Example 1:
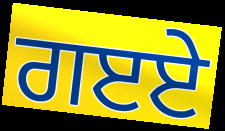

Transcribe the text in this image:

ਗੲਏ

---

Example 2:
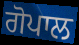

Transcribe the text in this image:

ਗੋਪਾਲ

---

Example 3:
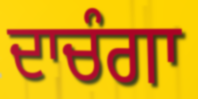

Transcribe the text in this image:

ਦਾਚੰਗਾ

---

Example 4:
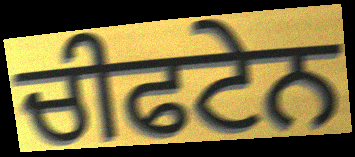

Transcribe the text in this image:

ਚੀਫਟੇਨ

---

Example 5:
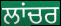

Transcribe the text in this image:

ਲਾਂਚਰ